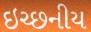
ઇચ્છનીય